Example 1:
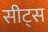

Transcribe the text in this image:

सीट्स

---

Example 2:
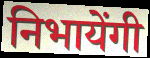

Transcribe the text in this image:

निभायेंगी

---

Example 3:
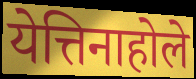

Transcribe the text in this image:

येत्तिनाहोले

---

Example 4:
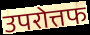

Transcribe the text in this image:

उपरोत्तफ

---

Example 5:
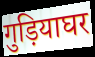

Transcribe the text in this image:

गुड़ियाघर